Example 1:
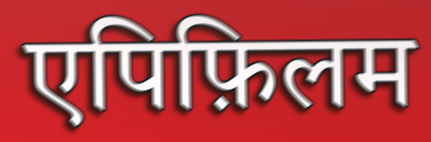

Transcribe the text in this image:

एपिफ़िलम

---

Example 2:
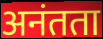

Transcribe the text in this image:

अनंतता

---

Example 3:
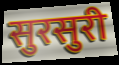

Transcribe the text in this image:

सुरसुरी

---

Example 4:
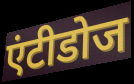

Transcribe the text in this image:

एंटीडोज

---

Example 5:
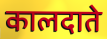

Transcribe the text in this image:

कालदाते